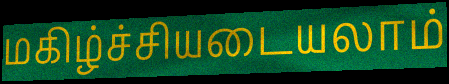
மகிழ்ச்சியடையலாம்